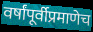
वर्षांपूर्वीप्रमाणेच